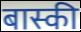
बास्की